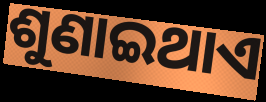
ଶୁଣାଇଥାଏ